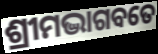
ଶ୍ରୀମଦ୍ଭାଗବତେ